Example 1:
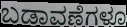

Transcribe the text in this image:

ಬಡಾವಣೆಗಳೂ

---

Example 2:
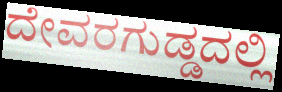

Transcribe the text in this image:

ದೇವರಗುಡ್ಡದಲ್ಲಿ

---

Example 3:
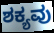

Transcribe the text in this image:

ಶಕ್ಯವು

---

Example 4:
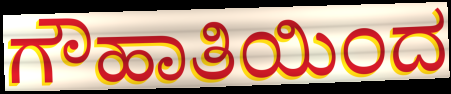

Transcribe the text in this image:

ಗೌಹಾತಿಯಿಂದ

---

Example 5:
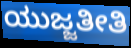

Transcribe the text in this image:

ಯುಜ್ಜತೀತಿ